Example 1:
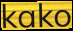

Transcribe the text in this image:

kako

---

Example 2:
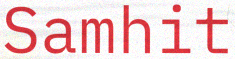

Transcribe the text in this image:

Samhit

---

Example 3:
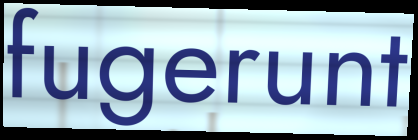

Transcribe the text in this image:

fugerunt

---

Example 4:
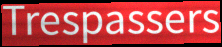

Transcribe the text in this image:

Trespassers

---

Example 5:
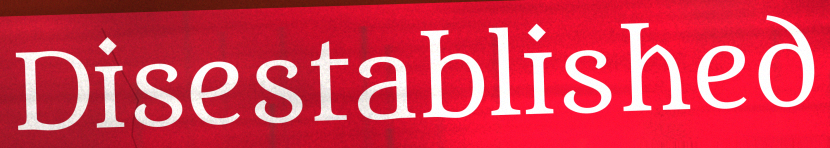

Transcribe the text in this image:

Disestablished